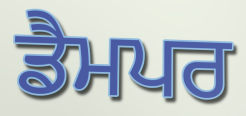
ਡੈਮਪਰ